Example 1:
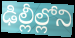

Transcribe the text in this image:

ఢిల్లీల్లోని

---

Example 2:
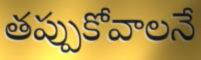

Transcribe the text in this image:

తప్పుకోవాలనే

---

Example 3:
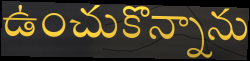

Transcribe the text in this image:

ఉంచుకొన్నాను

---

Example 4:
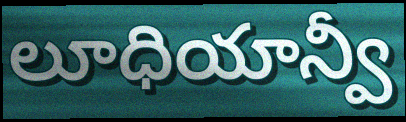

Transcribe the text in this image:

లూధియాన్వీ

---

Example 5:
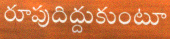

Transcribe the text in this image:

రూపుదిద్దుకుంటూ